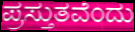
ಪ್ರಸ್ತುತವೆಂದು